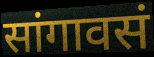
सांगावसं